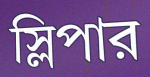
স্লিপার